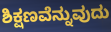
ಶಿಕ್ಷಣವೆನ್ನುವುದು